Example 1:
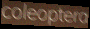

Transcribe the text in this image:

coleoptera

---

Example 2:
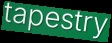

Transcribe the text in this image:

tapestry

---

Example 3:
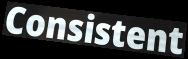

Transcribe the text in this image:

Consistent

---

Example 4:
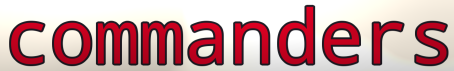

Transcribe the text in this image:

commanders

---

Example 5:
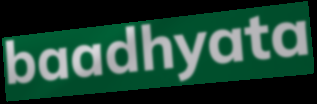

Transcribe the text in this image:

baadhyata